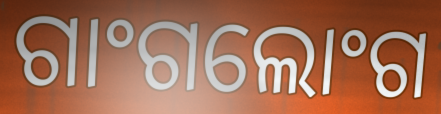
ଗାଂଗଲୋଂଗ